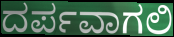
ದರ್ಪವಾಗಲಿ